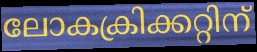
ലോകക്രിക്കറ്റിന്